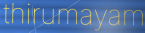
thirumayam